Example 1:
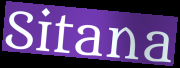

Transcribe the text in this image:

Sitana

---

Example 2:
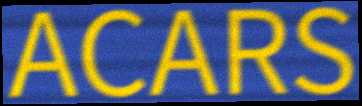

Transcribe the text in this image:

ACARS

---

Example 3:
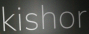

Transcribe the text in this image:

kishor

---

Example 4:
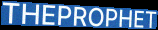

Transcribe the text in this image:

THEPROPHET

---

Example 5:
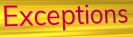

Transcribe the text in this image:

Exceptions